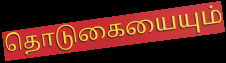
தொடுகையையும்